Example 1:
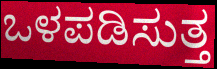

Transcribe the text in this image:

ಒಳಪಡಿಸುತ್ತ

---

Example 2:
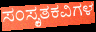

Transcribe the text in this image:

ಸಂಸ್ಕೃತಕವಿಗಳ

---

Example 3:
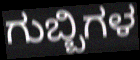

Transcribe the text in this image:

ಗುಬ್ಬಿಗಳ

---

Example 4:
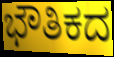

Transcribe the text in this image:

ಭೌತಿಕದ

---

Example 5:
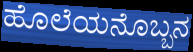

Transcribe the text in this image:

ಹೊಲೆಯನೊಬ್ಬನ